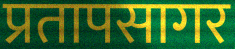
प्रतापसागर